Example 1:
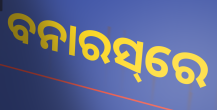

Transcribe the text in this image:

ବନାରସ୍‌ରେ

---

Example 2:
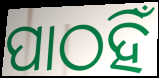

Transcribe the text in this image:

ପାଠହିଁ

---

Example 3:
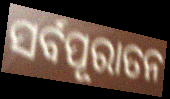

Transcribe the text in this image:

ସର୍ବପୂରାତନ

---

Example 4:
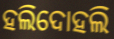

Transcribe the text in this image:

ହଲିଦୋହଲି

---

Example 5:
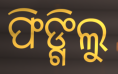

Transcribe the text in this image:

ଫିଙ୍ଗିଲୁ